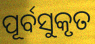
ପୂର୍ବସୁକୃତ